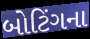
બોટિંગના